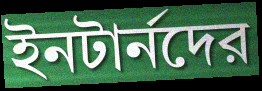
ইনটার্নদের